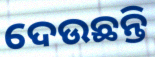
ଦେଉଛନ୍ତି